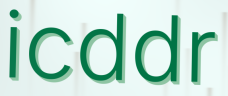
icddr